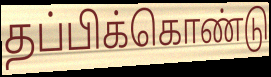
தப்பிக்கொண்டு